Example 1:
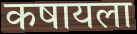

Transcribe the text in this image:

कषायला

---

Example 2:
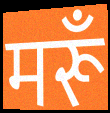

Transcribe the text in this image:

मरूँ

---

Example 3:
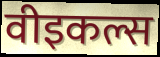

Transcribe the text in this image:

वीइकल्‍स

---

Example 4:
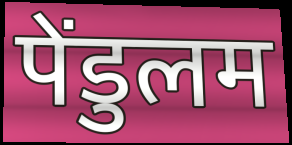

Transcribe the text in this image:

पेंडुलम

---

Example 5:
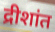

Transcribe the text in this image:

द्रीशांत